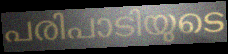
പരിപാടിയുടെ